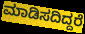
ಮಾಡಿಸದಿದ್ದರೆ